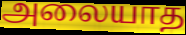
அலையாத